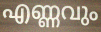
എണ്ണവും